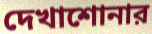
দেখাশোনার